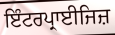
ਇੰਟਰਪ੍ਰਾਈਜਿਜ਼